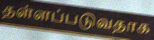
தள்ளப்படுவதாக